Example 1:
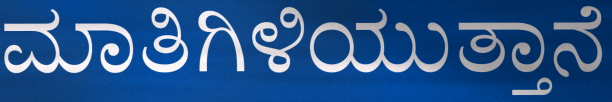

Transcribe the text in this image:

ಮಾತಿಗಿಳಿಯುತ್ತಾನೆ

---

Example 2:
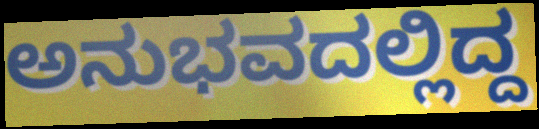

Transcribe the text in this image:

ಅನುಭವದಲ್ಲಿದ್ದ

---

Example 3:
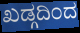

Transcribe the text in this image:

ಖಡ್ಗದಿಂದ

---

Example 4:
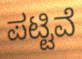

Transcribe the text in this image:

ಪಟ್ಟಿವೆ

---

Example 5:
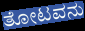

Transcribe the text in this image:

ತೋಟವನು